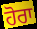
ਹੋਰਾ